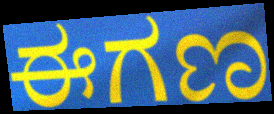
ಈಗಣ